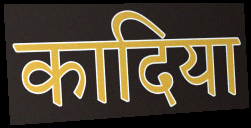
कादिया